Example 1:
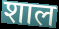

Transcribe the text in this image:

शाल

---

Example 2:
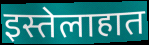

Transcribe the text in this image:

इस्तेलाहात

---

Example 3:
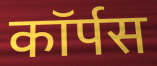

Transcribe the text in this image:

कॉर्पस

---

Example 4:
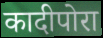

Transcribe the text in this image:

कादीपोरा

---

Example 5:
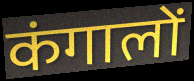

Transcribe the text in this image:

कंगालों